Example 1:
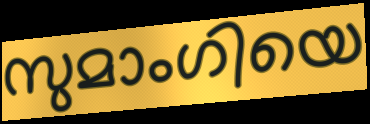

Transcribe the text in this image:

സുമാംഗിയെ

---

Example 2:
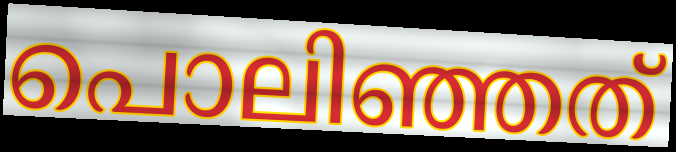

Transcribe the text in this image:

പൊലിഞ്ഞത്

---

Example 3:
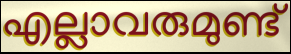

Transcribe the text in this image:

എല്ലാവരുമുണ്ട്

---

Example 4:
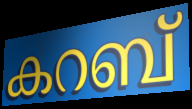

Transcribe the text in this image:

കറബ്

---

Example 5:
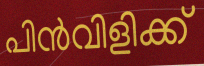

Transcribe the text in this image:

പിൻവിളിക്ക്